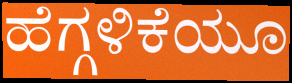
ಹೆಗ್ಗಳಿಕೆಯೂ